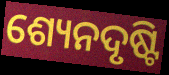
ଶ୍ୟେନଦୃଷ୍ଟି